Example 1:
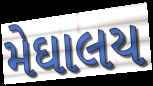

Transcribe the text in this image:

મેઘાલય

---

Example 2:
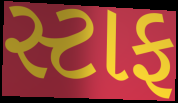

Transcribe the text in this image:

સ્ટાફ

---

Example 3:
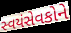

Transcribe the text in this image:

સ્વયંસેવકોને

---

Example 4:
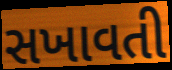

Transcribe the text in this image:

સખાવતી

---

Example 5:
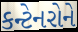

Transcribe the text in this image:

કન્ટેનરોને